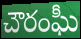
చౌరంఘీ